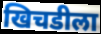
खिचडीला